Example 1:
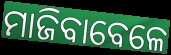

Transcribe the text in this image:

ମାଜିବାବେଳେ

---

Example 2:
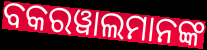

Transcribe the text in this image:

ବକରୱାଲମାନଙ୍କ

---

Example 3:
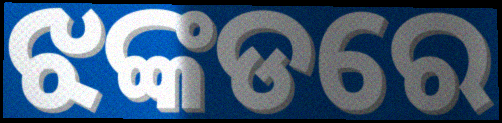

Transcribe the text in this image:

ଝଙ୍କଡରେ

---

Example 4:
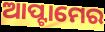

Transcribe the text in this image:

ଆପ୍ଟାମେର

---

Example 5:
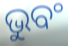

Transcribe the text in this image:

ଭୁବଂ